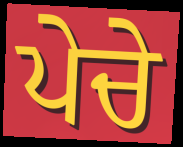
ਪੇਚੇ